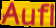
Aufl